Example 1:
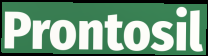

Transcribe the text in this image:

Prontosil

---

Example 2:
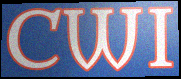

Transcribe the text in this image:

CWI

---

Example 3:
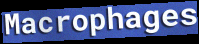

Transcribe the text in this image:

Macrophages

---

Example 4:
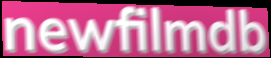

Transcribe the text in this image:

newfilmdb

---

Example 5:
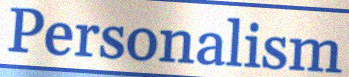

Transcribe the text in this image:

Personalism